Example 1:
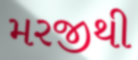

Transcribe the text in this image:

મરજીથી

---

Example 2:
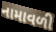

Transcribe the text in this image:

નામાવળી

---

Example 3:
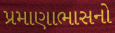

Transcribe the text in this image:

પ્રમાણાભાસનો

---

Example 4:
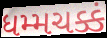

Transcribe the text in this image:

ધમ્મચક્કં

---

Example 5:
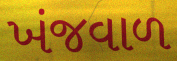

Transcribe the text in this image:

ખંજવાળ